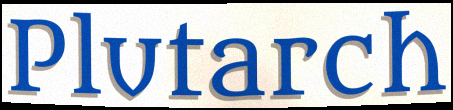
Plutarch